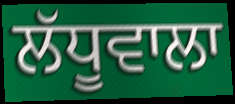
ਲੱਧੂਵਾਲਾ